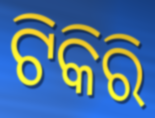
ଟିକିରି